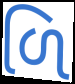
ળિ